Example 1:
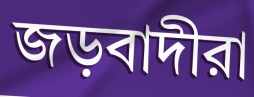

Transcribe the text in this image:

জড়বাদীরা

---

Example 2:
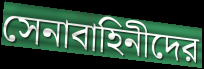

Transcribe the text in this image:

সেনাবাহিনীদের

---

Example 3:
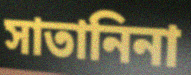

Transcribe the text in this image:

সাতানিনা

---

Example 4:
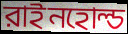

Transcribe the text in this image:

রাইনহোল্ড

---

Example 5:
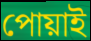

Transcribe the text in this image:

পোয়াই